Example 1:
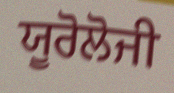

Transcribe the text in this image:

ਯੂਰੋਲੋਜੀ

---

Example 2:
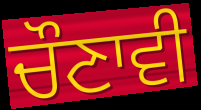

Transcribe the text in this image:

ਚੌਣਾਵੀ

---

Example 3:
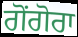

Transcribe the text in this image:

ਗੋਂਗੋਰਾ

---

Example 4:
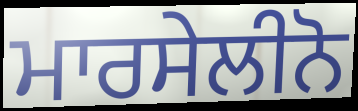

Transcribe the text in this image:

ਮਾਰਸੇਲੀਨੋ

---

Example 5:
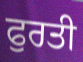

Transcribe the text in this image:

ਫੁਰਤੀ